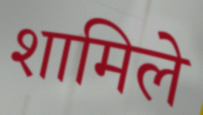
शामिले